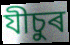
যীচুৰ